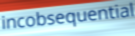
incobsequential